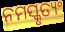
ନମସ୍କୃତ୍ୟଂ